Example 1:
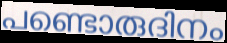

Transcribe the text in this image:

പണ്ടൊരുദിനം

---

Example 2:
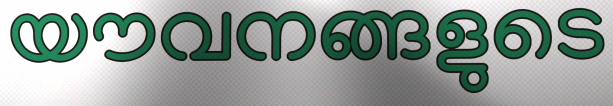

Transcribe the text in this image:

യൗവനങ്ങളുടെ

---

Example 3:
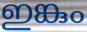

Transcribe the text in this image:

ഇങ്കും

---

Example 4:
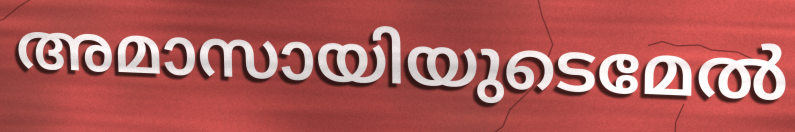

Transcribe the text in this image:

അമാസായിയുടെമേൽ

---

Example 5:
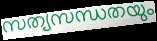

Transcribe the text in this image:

സത്യസന്ധതയും